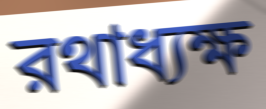
রথাধ্যক্ষ